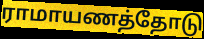
ராமாயணத்தோடு